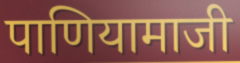
पाणियामाजी